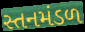
સ્તનમંડળ